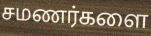
சமணர்களை